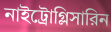
নাইট্রোগ্লিসারিন